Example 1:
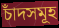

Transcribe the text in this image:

চাঁদসমূহ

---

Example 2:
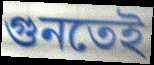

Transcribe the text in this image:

গুনতেই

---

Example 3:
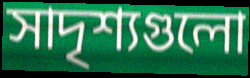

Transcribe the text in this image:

সাদৃশ্যগুলো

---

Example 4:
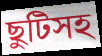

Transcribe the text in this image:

ছুটিসহ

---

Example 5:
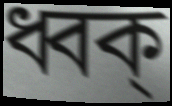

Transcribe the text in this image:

ধ্বক্